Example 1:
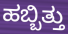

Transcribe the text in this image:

ಹಬ್ಬಿತ್ತು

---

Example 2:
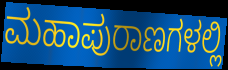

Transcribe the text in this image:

ಮಹಾಪುರಾಣಗಳಲ್ಲಿ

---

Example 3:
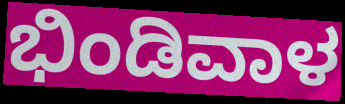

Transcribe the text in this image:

ಭಿಂಡಿವಾಳ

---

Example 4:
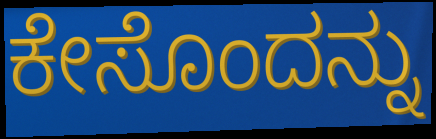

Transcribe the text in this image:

ಕೇಸೊಂದನ್ನು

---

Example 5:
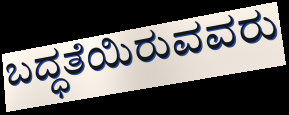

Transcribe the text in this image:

ಬದ್ಧತೆಯಿರುವವರು